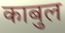
काबुल